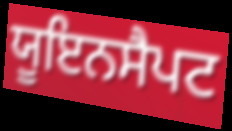
ਯੂਇਨਸੈਪਟ